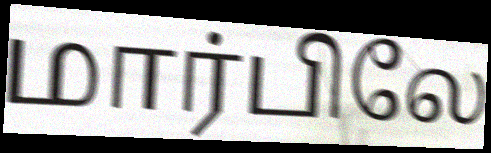
மார்பிலே